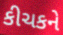
કીચકને